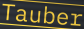
Tauber